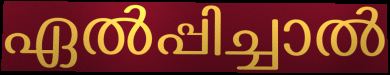
ഏൽപ്പിച്ചാൽ